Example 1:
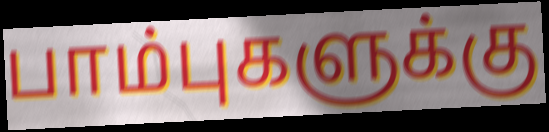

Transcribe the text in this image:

பாம்புகளுக்கு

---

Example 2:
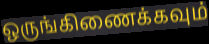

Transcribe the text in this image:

ஒருங்கிணைக்கவும்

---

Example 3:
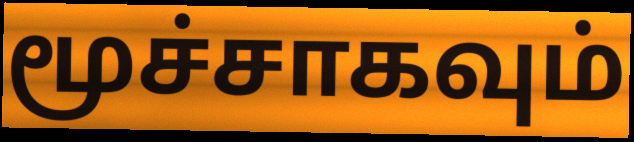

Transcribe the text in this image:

மூச்சாகவும்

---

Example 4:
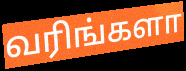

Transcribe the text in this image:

வரிங்களா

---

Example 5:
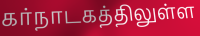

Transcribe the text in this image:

கர்நாடகத்திலுள்ள